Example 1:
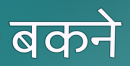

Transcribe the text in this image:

बकने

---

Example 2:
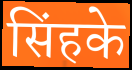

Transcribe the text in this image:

सिंहके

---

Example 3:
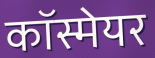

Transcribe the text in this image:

कॉस्मेयर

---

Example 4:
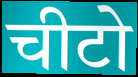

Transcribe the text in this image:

चीटो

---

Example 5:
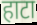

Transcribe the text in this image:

हाटा